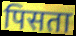
पिसता